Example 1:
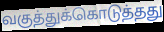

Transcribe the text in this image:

வகுத்துக்கொடுத்தது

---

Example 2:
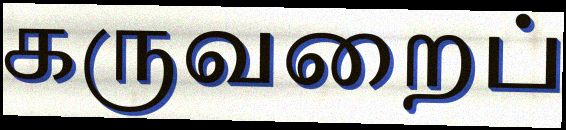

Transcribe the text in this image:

கருவறைப்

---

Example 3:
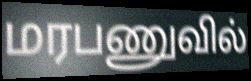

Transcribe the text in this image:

மரபணுவில்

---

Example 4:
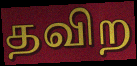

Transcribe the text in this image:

தவிற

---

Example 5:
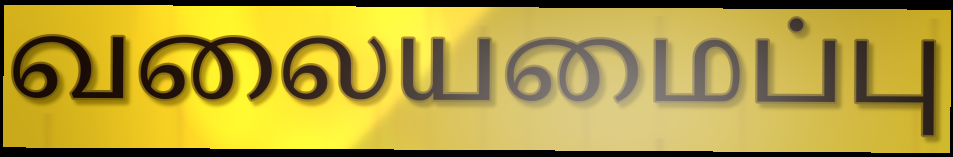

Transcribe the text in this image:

வலையமைப்பு